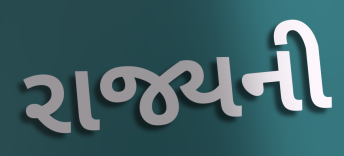
રાજ્યની